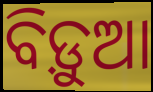
ବିଡ଼ୁଆ